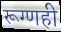
रूग्णही